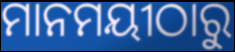
ମାନମୟୀଠାରୁ